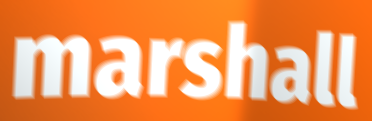
marshall